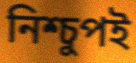
নিশ্চুপই